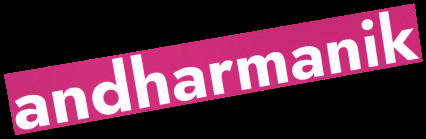
andharmanik